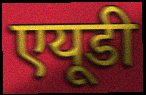
एयूडी